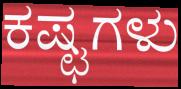
ಕಷ್ಟಗಳು